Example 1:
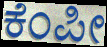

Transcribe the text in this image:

ಕೆಂಪೀ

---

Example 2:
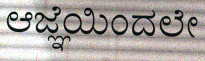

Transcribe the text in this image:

ಆಜ್ಞೆಯಿಂದಲೇ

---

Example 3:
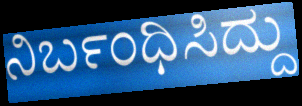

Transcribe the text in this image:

ನಿರ್ಬಂಧಿಸಿದ್ದು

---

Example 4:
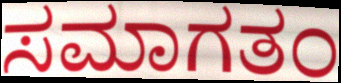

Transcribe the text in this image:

ಸಮಾಗತಂ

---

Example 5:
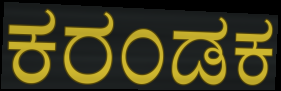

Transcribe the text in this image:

ಕರಂಡಕ